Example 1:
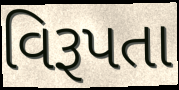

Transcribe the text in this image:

વિરૂપતા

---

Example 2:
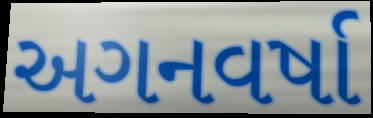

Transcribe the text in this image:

અગનવર્ષા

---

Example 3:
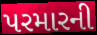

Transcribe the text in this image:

પરમારની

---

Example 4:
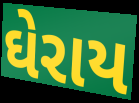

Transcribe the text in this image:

ઘેરાય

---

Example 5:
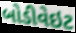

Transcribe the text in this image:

બોડીવેઇટ